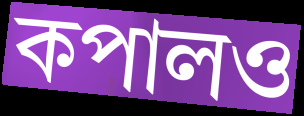
কপালও